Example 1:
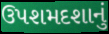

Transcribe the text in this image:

ઉપશમદશાનું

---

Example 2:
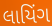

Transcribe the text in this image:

લાયિંગ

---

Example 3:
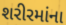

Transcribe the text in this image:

શરીરમાંના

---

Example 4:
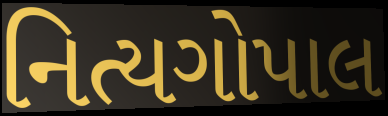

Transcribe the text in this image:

નિત્યગોપાલ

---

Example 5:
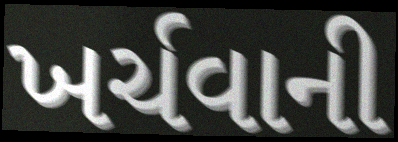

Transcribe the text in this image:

ખર્ચવાની